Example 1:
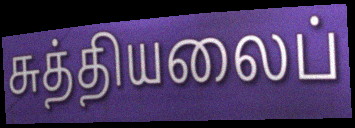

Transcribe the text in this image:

சுத்தியலைப்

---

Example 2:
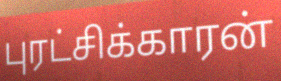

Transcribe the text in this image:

புரட்சிக்காரன்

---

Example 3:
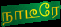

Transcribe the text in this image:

நாடீரே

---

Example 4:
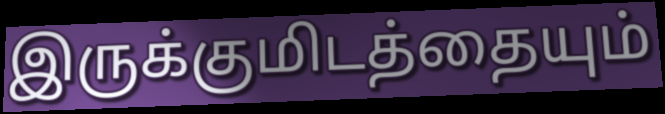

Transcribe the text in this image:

இருக்குமிடத்தையும்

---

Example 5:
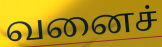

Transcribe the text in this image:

வனைச்